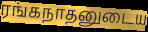
ரங்கநாதனுடைய